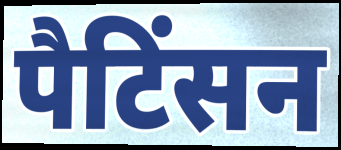
पैटिंसन